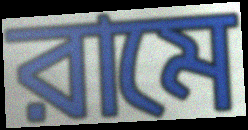
রামে